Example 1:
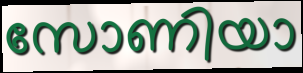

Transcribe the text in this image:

സോണിയാ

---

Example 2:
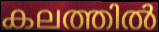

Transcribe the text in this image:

കലത്തിൽ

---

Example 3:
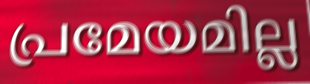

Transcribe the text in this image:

പ്രമേയമില്ല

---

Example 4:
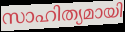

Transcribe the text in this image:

സാഹിത്യമായി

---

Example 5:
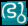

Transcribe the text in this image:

ഭു